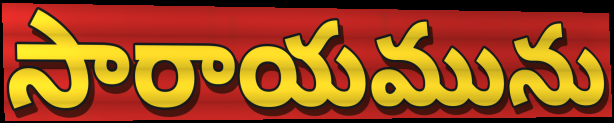
సారాయమును